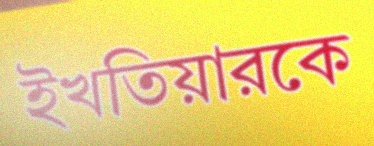
ইখতিয়ারকে